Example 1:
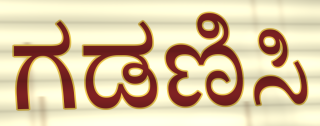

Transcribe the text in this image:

ಗಡಣಿಸಿ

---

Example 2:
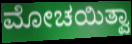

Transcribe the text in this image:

ಮೋಚಯಿತ್ವಾ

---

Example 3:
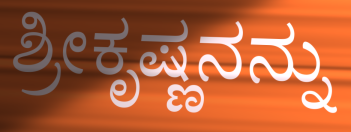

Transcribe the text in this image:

ಶ್ರೀಕೃಷ್ಣನನ್ನು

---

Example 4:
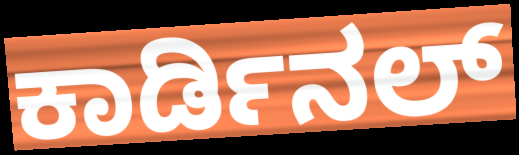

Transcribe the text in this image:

ಕಾರ್ಡಿನಲ್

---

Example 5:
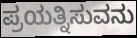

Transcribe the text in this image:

ಪ್ರಯತ್ನಿಸುವನು